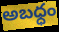
అబధ్ధం